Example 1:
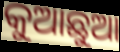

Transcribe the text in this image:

କୁଆଛୁଆ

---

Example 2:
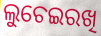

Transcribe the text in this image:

ଲୁଚେଇରଖି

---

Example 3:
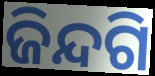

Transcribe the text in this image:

ଜିନ୍ଦଗି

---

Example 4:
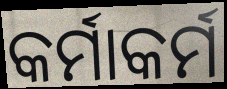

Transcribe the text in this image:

କର୍ମାକର୍ମ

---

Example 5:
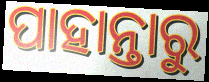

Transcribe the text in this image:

ପାହାନ୍ତାରୁ